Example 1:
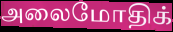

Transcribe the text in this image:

அலைமோதிக்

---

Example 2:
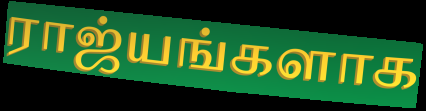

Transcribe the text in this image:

ராஜ்யங்களாக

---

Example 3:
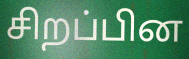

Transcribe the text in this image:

சிறப்பின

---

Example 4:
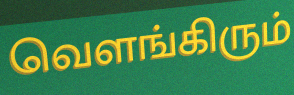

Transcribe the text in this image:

வெளங்கிரும்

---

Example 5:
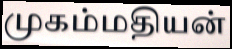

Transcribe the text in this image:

முகம்மதியன்